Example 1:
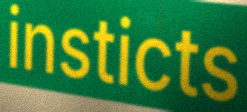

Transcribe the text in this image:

insticts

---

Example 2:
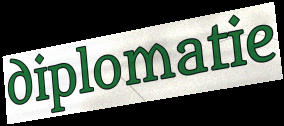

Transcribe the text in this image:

diplomatie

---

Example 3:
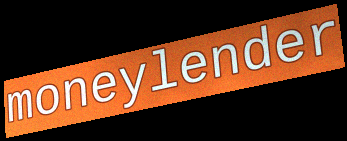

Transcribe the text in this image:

moneylender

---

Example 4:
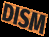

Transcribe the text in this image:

DISM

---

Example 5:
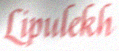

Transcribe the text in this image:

Lipulekh